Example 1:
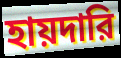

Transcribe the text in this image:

হায়দারি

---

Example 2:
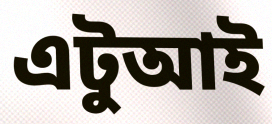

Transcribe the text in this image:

এটুআই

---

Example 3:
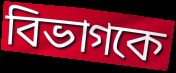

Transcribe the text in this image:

বিভাগকে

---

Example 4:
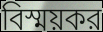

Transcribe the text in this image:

বিস্ময়কর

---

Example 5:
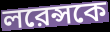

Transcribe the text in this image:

লরেন্সকে